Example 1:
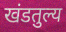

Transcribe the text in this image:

खंडतुल्य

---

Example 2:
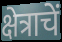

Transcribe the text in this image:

क्षेत्राचें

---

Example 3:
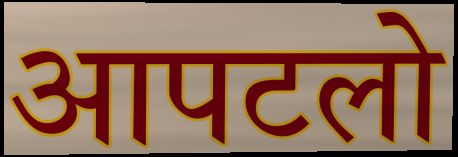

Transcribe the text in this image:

आपटलो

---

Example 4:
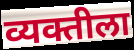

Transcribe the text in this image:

व्यक्तीला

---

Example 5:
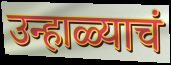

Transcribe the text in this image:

उन्हाळ्याचं